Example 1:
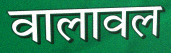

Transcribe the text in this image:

वालावल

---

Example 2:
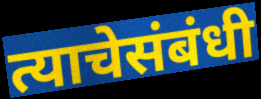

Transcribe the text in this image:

त्याचेसंबंधी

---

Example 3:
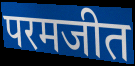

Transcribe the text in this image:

परमजीत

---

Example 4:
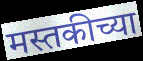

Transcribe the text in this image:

मस्तकीच्या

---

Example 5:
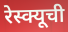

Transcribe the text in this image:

रेस्क्यूची